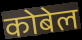
कोबेल